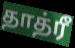
தாத்ரீ